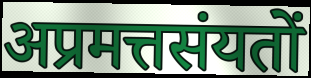
अप्रमत्तसंयतों